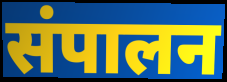
संपालन